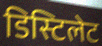
डिस्टिलेट